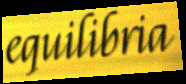
equilibria